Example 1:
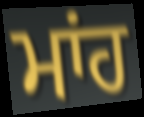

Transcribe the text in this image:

ਮਾਂਹ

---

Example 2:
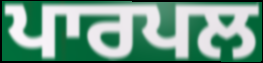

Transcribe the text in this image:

ਪਾਰਪਲ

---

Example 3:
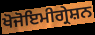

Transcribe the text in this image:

ਖੋਜੋਇਮੀਗ੍ਰੇਸ਼ਨ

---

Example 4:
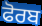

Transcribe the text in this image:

ਫੋਰਬ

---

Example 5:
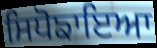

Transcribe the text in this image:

ਸਿਧੋਙਾਇਆ